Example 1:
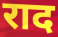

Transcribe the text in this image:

राद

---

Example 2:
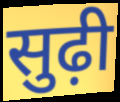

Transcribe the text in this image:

सुढ़ी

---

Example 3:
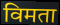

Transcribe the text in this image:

विमता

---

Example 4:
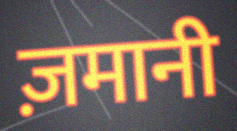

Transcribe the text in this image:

ज़मानी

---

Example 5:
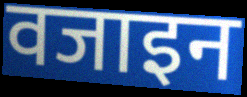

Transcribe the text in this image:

वजाइन